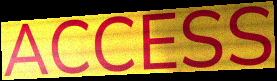
ACCESS